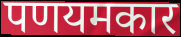
पणयमकार